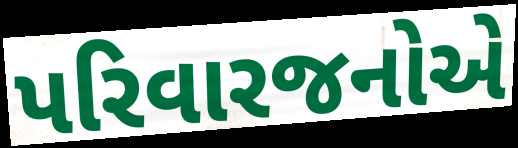
પરિવારજનોએ